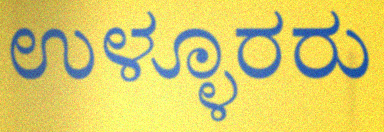
ಉಳ್ಳೂರರು